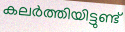
കലർത്തിയിട്ടുണ്ട്